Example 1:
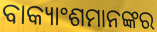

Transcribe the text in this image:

ବାକ୍ୟାଂଶମାନଙ୍କର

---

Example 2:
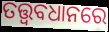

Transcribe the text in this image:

ତତ୍ତ୍ଵବଧାନରେ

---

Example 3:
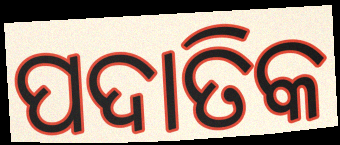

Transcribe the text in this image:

ପଦାତିକ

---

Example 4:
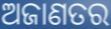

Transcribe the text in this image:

ଅଜାଣତର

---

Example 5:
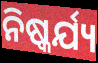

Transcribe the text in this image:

ନିଷ୍କର୍ଯ୍ୟ